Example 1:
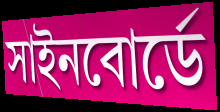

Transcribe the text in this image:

সাইনবোর্ডে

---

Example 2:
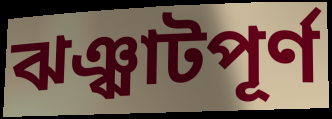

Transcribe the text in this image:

ঝঞ্ঝাটপূর্ণ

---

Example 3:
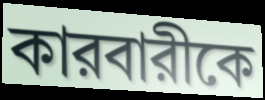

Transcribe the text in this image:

কারবারীকে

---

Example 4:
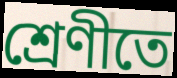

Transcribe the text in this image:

শ্রেণীতে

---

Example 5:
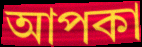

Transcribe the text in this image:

আপকা